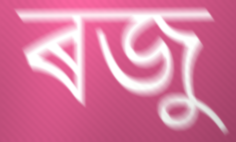
ৰজু